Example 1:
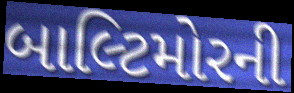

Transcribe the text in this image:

બાલ્ટિમોરની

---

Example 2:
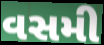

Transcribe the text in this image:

વસમી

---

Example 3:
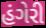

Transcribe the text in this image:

હંગેરી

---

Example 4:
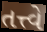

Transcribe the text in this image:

તત્ત્વે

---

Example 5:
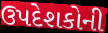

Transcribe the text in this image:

ઉપદેશકોની